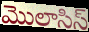
మొలాసిస్